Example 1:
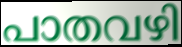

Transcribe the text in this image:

പാതവഴി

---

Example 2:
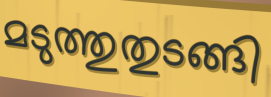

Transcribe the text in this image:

മടുത്തുതുടങ്ങി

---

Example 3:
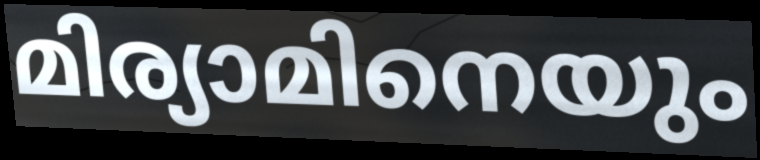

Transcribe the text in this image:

മിര്യാമിനെയും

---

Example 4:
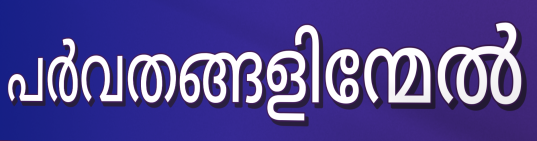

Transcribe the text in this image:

പർവതങ്ങളിന്മേൽ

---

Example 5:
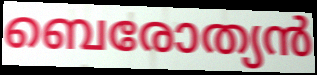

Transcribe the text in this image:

ബെരോത്യൻ